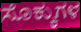
ಸೊಕ್ಕುಗಳ